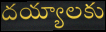
దయ్యాలకు